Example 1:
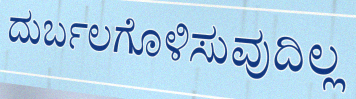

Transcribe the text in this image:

ದುರ್ಬಲಗೊಳಿಸುವುದಿಲ್ಲ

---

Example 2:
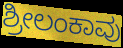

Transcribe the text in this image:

ಶ್ರೀಲಂಕಾವು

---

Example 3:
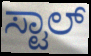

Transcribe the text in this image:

ಸ್ಟಾಲ್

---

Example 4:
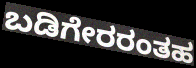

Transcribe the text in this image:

ಬಡಿಗೇರರಂತಹ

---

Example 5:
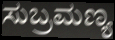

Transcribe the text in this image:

ಸುಬ್ರಮಣ್ಯ